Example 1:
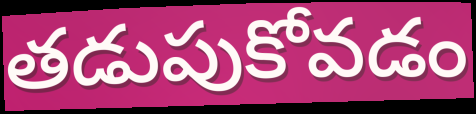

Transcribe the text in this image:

తడుపుకోవడం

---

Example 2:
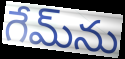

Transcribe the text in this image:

గేమ్‌ను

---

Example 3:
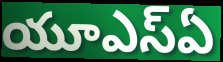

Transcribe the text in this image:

యూఎస్ఏ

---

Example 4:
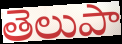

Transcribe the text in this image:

తెలుపా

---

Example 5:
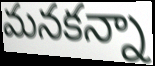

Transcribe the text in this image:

మనకన్నా